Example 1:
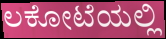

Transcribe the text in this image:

ಲಕೋಟೆಯಲ್ಲಿ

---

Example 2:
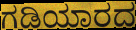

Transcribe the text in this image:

ಗಡಿಯಾರದ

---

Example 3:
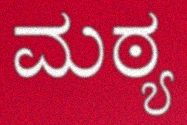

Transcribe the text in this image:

ಮಠ್ಯ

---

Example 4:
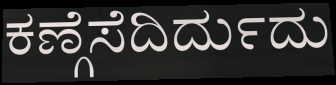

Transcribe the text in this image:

ಕಣ್ಗೆಸೆದಿರ್ದುದು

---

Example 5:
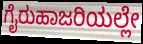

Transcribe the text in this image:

ಗೈರುಹಾಜರಿಯಲ್ಲೇ